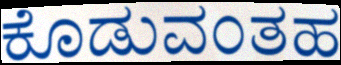
ಕೊಡುವಂತಹ